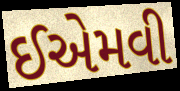
ઈએમવી